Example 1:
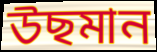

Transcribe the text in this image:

উছমান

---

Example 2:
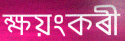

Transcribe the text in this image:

ক্ষয়ংকৰী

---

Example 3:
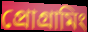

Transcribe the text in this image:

প্ৰোগ্ৰামিং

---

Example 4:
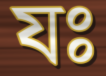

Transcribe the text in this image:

যঃ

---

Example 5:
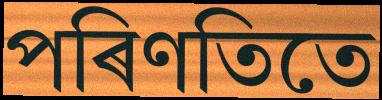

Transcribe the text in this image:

পৰিণতিতে